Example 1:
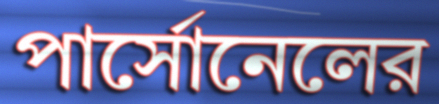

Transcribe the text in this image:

পার্সোনেলের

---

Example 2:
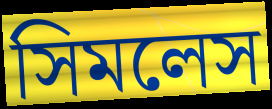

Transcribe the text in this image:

সিমলেস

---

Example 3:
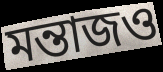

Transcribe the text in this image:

মন্তাজও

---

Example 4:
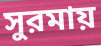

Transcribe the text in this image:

সুরমায়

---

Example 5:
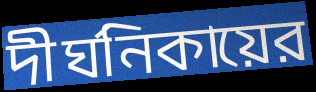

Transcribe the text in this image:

দীর্ঘনিকায়ের